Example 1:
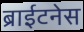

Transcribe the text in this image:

ब्राईटनेस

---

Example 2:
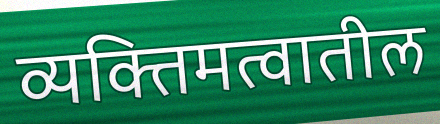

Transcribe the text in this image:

व्यक्तिमत्वातील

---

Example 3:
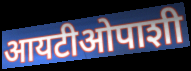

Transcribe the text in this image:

आयटीओपाशी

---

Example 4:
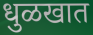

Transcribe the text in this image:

धुळखात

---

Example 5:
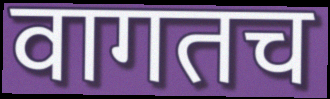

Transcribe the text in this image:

वागतच